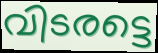
വിടരട്ടെ